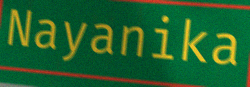
Nayanika